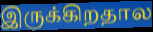
இருக்கிறதால